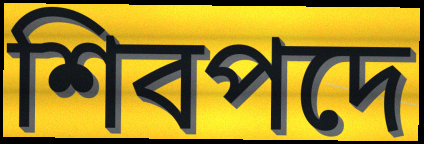
শিবপদে